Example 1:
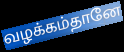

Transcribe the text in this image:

வழக்கம்தானே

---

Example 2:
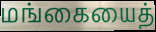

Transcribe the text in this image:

மங்கையைத்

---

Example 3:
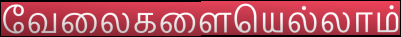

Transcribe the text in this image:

வேலைகளையெல்லாம்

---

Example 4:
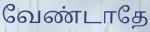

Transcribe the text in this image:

வேண்டாதே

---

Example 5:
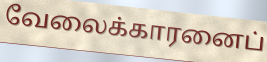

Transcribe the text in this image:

வேலைக்காரனைப்